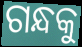
ଗନ୍ଧକୁ